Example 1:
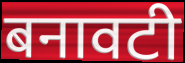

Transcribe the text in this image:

बनावटी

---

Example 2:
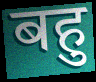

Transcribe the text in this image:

बहु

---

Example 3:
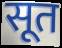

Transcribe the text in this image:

सूत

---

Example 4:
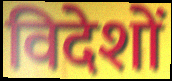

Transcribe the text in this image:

विदेशों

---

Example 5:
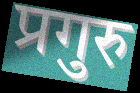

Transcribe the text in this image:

प्रगुरु